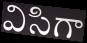
విసిగా